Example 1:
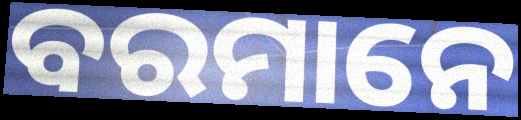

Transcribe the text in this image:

ବରମାନେ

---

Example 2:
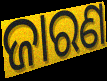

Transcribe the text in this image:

ଜାରଣ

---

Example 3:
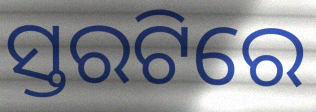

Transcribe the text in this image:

ସ୍ତରଟିରେ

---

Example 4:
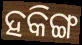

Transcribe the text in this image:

ହକିଙ୍ଗ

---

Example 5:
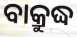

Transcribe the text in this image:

ବାକ୍ରୁଦ୍ଧ